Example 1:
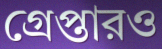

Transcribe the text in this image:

গ্রেপ্তারও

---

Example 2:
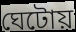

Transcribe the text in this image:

ঘেটোয়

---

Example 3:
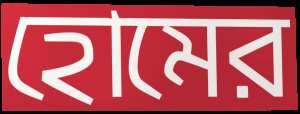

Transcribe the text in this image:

হোমের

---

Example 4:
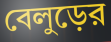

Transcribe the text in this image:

বেলুড়ের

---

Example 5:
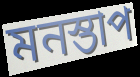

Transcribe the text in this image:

মনস্তাপ